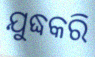
ଯୁଦ୍ଧକରି